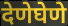
देणेघेणे